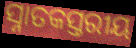
ସ୍ନାତକସ୍ତରୀୟ